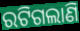
ରଟିଗଲାଣି